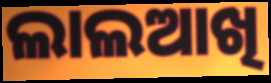
ଲାଲଆଖି